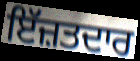
ਇੱਜ਼ਤਦਾਰ